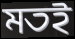
মতই